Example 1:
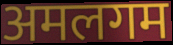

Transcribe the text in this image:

अमलगम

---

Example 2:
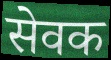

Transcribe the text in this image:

सेवक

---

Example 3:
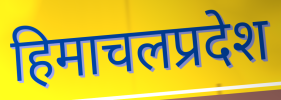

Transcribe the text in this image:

हिमाचलप्रदेश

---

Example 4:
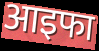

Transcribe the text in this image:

आइफा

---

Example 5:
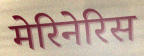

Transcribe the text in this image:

मेरिनेरिस